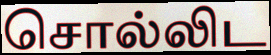
சொல்லிட